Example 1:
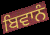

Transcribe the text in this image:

ਬਿਵਾਨੰ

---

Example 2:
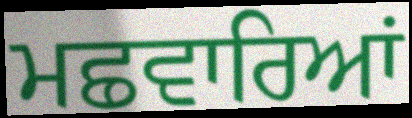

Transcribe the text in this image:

ਮਛਵਾਰਿਆਂ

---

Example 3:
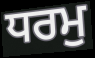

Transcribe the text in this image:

ਧਰਮੁ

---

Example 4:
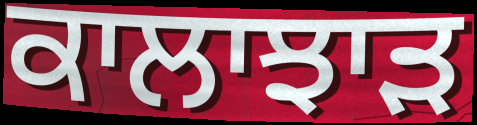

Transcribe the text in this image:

ਕਾਲਾਝਾਡ਼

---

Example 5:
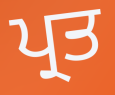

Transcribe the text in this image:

ਪ੍ਰਤ